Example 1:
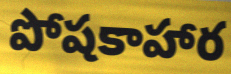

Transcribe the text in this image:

పోషకాహార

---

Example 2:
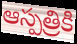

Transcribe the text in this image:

ఆస్పత్రికి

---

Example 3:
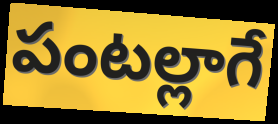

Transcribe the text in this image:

పంటల్లాగే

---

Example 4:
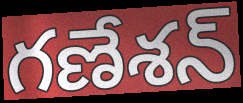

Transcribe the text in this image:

గణేశన్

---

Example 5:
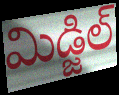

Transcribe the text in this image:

మిడ్జిల్